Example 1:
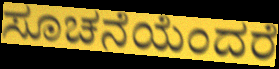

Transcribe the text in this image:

ಸೂಚನೆಯೆಂದರೆ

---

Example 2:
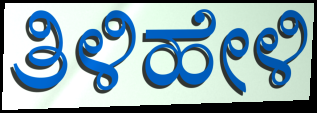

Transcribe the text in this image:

ತಿಳಿಹೇಳಿ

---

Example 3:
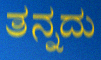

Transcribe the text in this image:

ತನ್ನದು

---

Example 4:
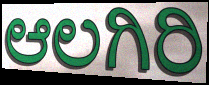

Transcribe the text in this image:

ಆಲಗಿರಿ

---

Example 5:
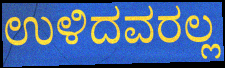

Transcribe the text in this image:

ಉಳಿದವರಲ್ಲ